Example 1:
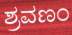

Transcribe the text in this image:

ಶ್ರವಣಂ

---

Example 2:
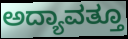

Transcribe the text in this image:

ಅದ್ಯಾವತ್ತೂ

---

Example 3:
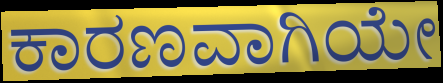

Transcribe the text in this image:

ಕಾರಣವಾಗಿಯೇ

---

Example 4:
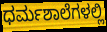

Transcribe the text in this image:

ಧರ್ಮಶಾಲೆಗಳಲ್ಲಿ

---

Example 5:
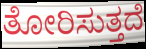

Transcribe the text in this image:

ತೋರಿಸುತ್ತದೆ